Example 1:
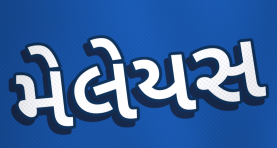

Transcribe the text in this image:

મેલેયસ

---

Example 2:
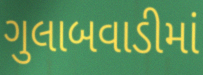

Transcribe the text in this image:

ગુલાબવાડીમાં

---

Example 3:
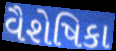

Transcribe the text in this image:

વૈશેષિકા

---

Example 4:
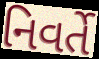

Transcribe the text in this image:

નિવર્તે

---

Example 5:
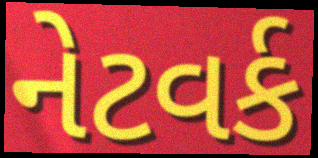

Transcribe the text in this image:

નેટવર્ક